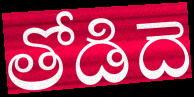
తోడిదె